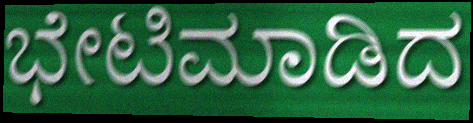
ಭೇಟಿಮಾಡಿದ